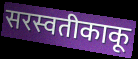
सरस्वतीकाकू